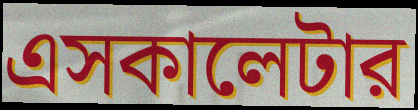
এসকালেটার